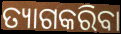
ତ୍ୟାଗକରିବା